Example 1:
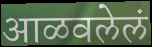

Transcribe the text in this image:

आळवलेलं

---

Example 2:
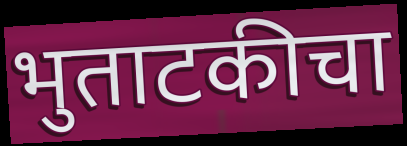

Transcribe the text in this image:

भुताटकीचा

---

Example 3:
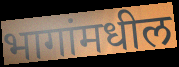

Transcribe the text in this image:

भागांमधील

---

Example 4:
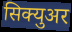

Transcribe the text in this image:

सिक्युअर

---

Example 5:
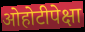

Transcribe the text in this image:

ओहोटीपेक्षा